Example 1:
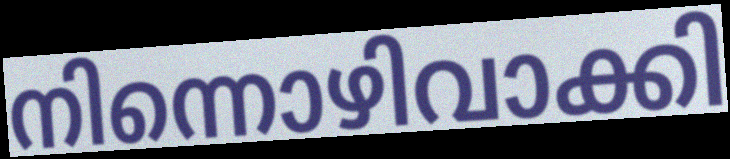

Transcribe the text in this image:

നിന്നൊഴിവാക്കി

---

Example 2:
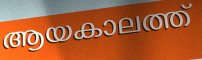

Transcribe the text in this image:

ആയകാലത്ത്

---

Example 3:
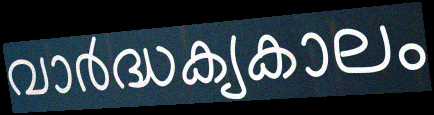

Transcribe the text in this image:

വാർദ്ധക്യകാലം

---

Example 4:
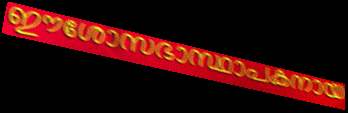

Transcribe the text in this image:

ഈശോസഭാസ്ഥാപകനായ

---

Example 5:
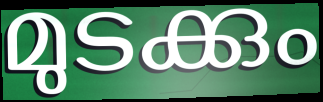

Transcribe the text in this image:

മുടക്കും